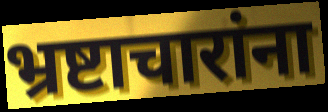
भ्रष्टाचारांना